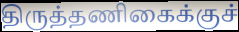
திருத்தணிகைக்குச்